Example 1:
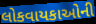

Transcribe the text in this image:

લોકવાયકાઓની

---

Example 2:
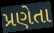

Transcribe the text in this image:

પ્રણેતા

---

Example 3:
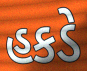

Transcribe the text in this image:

હકડે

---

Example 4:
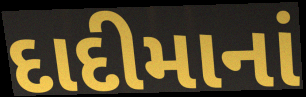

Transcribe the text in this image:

દાદીમાનાં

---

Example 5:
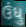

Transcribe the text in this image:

ઉંધુ